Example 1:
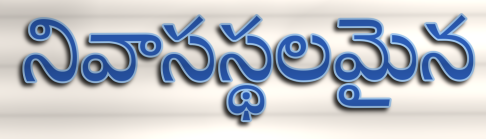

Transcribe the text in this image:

నివాసస్థలమైన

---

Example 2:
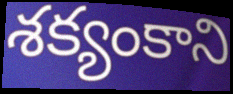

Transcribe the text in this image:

శక్యంకాని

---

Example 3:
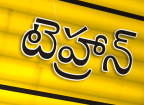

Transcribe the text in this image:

టెహ్రాన్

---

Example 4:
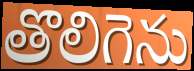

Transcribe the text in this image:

తొలిగెను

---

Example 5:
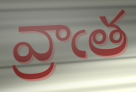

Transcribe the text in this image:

వ్రాఁత